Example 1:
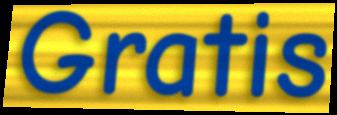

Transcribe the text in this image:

Gratis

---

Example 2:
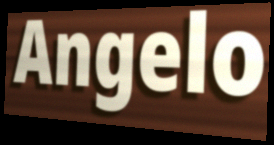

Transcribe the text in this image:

Angelo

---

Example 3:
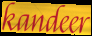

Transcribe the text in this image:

kandeer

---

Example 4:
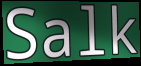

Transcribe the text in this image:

Salk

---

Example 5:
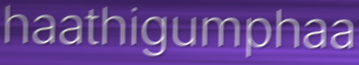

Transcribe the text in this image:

haathigumphaa